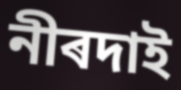
নীৰদাই